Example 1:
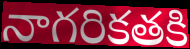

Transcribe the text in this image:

నాగరికతకి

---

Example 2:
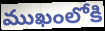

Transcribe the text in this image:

ముఖంలోకి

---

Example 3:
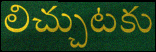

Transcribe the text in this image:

లిచ్చుటకు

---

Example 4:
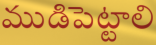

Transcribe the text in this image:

ముడిపెట్టాలి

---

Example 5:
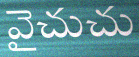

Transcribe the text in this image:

వైచుచు